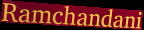
Ramchandani